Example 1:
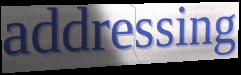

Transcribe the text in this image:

addressing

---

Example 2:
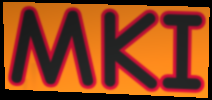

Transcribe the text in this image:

MKI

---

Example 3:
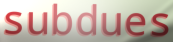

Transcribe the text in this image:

subdues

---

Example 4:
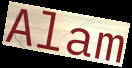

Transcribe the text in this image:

Alam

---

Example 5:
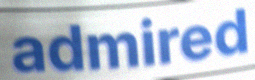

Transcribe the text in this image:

admired